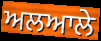
ਅਲਆਲੇ